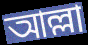
আল্লা